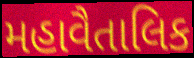
મહાવૈતાલિક